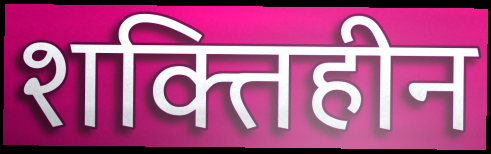
शक्तिहीन